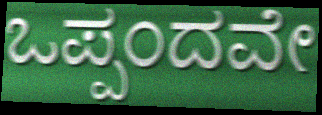
ಒಪ್ಪಂದವೇ